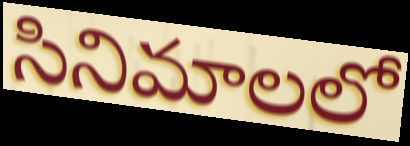
సినిమాలలో